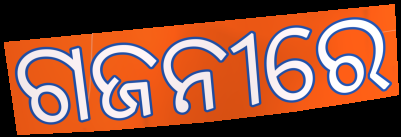
ଗଜନୀରେ